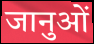
जानुओं